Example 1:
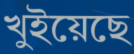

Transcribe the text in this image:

খুইয়েছে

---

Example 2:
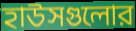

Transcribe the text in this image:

হাউসগুলোর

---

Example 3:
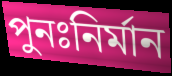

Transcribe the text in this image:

পুনঃনির্মান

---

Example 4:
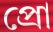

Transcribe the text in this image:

প্রো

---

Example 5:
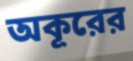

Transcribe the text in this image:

অকূরের